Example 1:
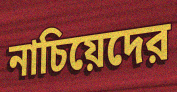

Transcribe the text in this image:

নাচিয়েদের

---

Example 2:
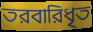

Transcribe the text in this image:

তরবারিধৃত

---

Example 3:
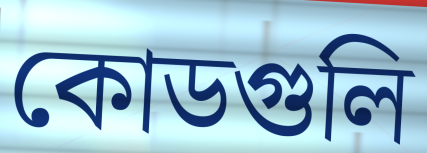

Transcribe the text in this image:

কোডগুলি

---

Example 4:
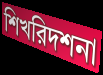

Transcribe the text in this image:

শিখরিদশনা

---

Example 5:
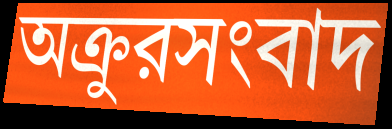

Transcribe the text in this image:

অক্রুরসংবাদ